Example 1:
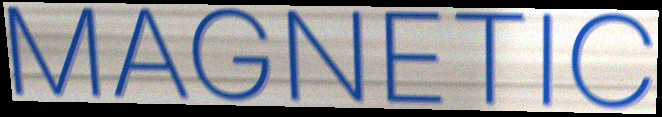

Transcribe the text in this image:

MAGNETIC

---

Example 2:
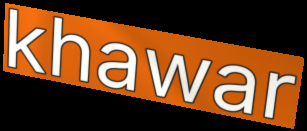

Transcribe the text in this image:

khawar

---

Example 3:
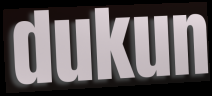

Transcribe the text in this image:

dukun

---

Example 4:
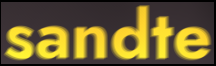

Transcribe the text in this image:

sandte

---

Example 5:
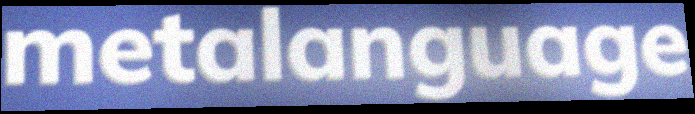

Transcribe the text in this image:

metalanguage